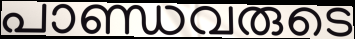
പാണ്ഡവരുടെ